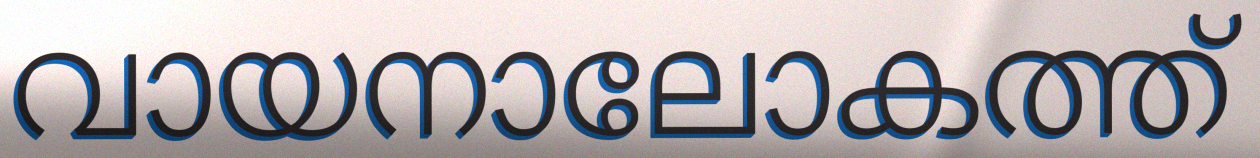
വായനാലോകത്ത്